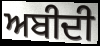
ਅਬੀਦੀ